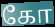
கோ